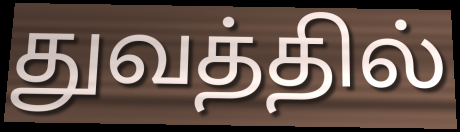
துவத்தில்